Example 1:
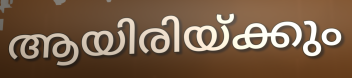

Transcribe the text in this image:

ആയിരിയ്ക്കും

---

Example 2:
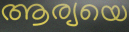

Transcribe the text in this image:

ആര്യയെ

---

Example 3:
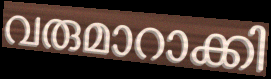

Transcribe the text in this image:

വരുമാറാക്കി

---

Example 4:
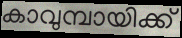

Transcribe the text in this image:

കാവുമ്പായിക്ക്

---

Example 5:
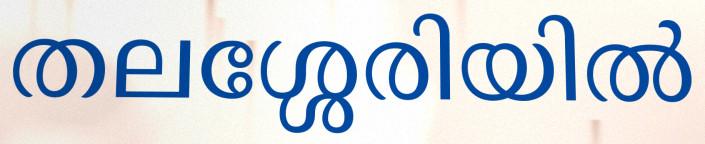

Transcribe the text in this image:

തലശ്ശേരിയിൽ